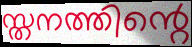
സ്തനത്തിന്റെ